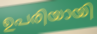
ഉപരിയായി